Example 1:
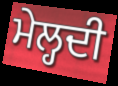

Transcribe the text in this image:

ਮੇਲ੍ਹਦੀ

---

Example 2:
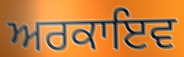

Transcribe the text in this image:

ਅਰਕਾਇਵ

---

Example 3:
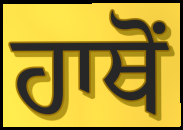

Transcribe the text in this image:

ਹਾਥੋਂ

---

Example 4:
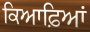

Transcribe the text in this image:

ਕਿਆਫ਼ਿਆਂ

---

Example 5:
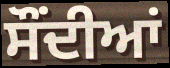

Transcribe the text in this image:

ਸੌਂਦੀਆਂ